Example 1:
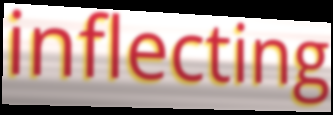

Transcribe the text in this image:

inflecting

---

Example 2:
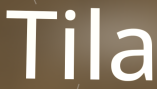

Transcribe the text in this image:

Tila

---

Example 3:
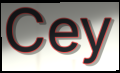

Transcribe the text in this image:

Cey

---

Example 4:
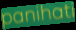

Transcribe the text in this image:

panihati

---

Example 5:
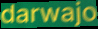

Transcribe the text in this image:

darwajo